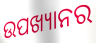
ଉପଖ୍ୟାନର